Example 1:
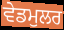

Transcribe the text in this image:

ਵੇਡਮੁਲਰ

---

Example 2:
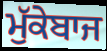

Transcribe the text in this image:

ਮੁੱਕੇਬਾਜ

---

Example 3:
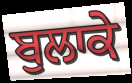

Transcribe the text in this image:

ਬੁਲਾਕੇ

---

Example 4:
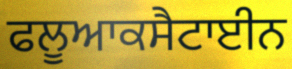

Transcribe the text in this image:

ਫਲੂਆਕਸੈਟਾਈਨ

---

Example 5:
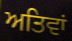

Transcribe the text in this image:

ਅਤਿਵਾਂ